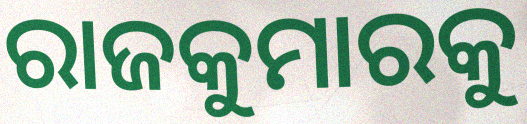
ରାଜକୁମାରକୁ